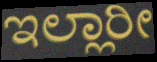
ಇಲ್ಲಾರೀ